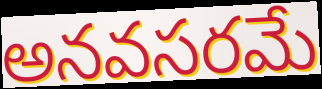
అనవసరమే